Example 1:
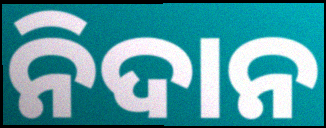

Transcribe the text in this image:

ନିଦାନ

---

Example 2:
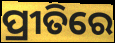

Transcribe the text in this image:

ପ୍ରୀତିରେ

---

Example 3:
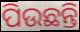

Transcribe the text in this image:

ପିଉଛନ୍ତି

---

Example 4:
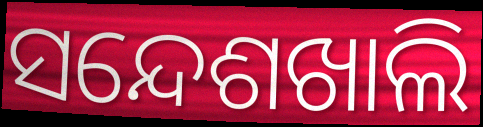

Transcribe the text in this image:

ସନ୍ଦେଶଖାଲି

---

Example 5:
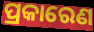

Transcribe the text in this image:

ପ୍ରକାରେଣ